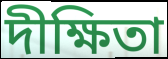
দীক্ষিতা